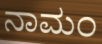
ನಾಮಂ